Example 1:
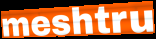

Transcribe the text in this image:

meshtru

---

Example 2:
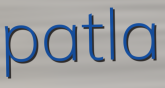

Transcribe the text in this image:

patla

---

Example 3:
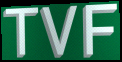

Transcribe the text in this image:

TVF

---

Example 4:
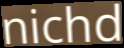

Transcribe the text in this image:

nichd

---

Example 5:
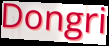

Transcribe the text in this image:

Dongri